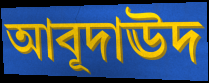
আবূদাঊদ